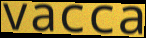
vacca